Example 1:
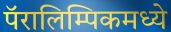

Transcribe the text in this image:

पॅरालिम्पिकमध्ये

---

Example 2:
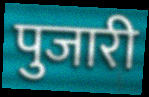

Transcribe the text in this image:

पुजारी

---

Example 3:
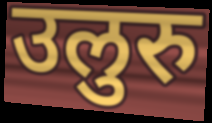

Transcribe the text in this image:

उलुरु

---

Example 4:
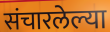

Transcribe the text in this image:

संचारलेल्या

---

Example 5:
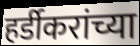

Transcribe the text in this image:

हर्डीकरांच्या